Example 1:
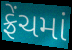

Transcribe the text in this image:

ફ્રેંચમાં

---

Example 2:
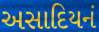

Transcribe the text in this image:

અસાદિયનં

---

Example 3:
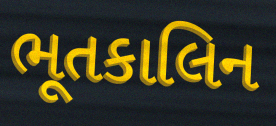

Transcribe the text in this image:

ભૂતકાલિન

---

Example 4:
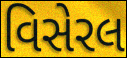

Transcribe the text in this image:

વિસેરલ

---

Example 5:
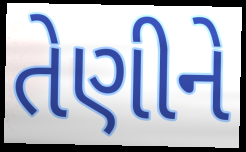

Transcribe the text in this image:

તેણીને